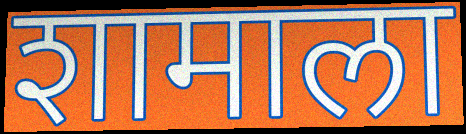
शामाला